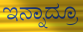
ಇನ್ನಾದ್ರೂ